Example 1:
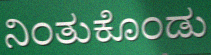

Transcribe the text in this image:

ನಿಂತುಕೊಂಡು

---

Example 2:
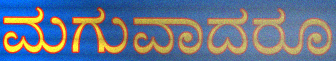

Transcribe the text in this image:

ಮಗುವಾದರೂ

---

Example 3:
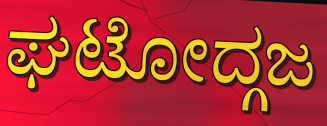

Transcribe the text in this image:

ಘಟೋದ್ಗಜ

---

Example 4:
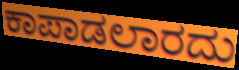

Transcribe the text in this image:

ಕಾಪಾಡಲಾರದು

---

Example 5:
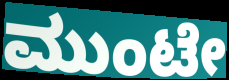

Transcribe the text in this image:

ಮುಂಟೇ